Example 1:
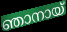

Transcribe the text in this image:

ഞാനായ്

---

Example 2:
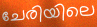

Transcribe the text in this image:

ചേരിയിലെ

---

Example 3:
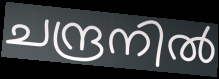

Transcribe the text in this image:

ചന്ദ്രനിൽ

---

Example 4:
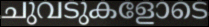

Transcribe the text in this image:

ചുവടുകളോടെ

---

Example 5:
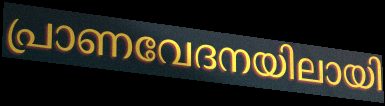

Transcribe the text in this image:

പ്രാണവേദനയിലായി